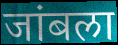
जांबला